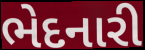
ભેદનારી